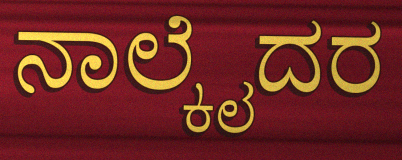
ನಾಲ್ಕೈದರ